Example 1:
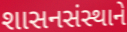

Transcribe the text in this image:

શાસનસંસ્થાને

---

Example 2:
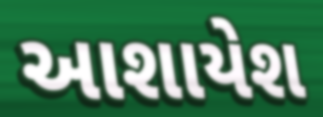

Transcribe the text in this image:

આશાયેશ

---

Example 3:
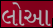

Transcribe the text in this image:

લોઆ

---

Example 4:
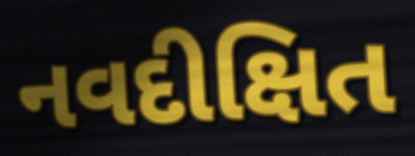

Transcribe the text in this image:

નવદીક્ષિત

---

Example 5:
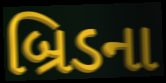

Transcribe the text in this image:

બ્રિડના